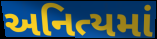
અનિત્યમાં